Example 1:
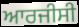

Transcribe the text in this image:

ਆਰਜੀਸੀ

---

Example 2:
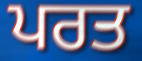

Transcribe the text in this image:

ਪਰਤ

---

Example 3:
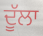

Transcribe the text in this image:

ਦੂੱਲਾ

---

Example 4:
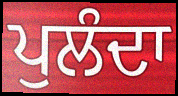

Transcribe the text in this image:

ਪੁਲੰਦਾ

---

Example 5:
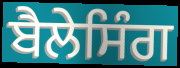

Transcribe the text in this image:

ਬੈਲੇਸਿੰਗ